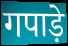
गपाड़े